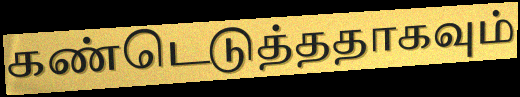
கண்டெடுத்ததாகவும்